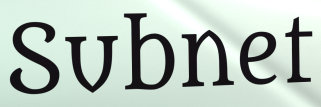
Subnet